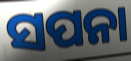
ସପନା